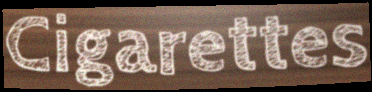
Cigarettes